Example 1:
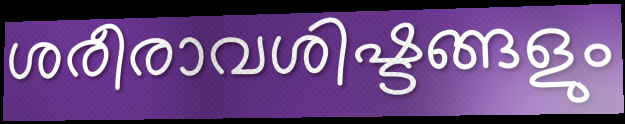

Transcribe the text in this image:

ശരീരാവശിഷ്ടങ്ങളും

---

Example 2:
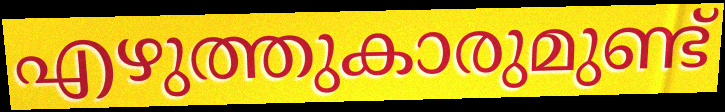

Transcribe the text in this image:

എഴുത്തുകാരുമുണ്ട്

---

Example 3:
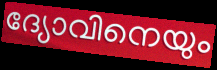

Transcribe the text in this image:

ദ്യോവിനെയും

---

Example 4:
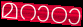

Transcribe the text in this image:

മറാഠാ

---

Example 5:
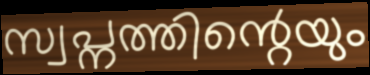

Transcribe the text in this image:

സ്വപ്നത്തിന്റെയും